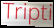
Tripti